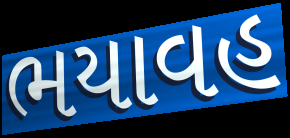
ભયાવહ